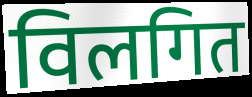
विलगित